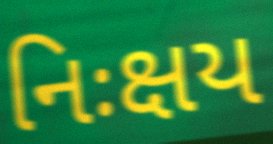
નિઃક્ષય